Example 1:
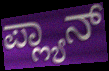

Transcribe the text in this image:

ಪ್ಲ್ಯಾನ್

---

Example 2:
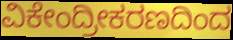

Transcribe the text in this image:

ವಿಕೇಂದ್ರೀಕರಣದಿಂದ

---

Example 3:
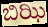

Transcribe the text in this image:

ಬಿಝಿ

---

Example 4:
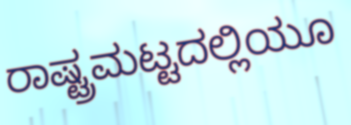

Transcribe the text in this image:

ರಾಷ್ಟ್ರಮಟ್ಟದಲ್ಲಿಯೂ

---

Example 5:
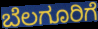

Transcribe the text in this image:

ಬೆಲಗೂರಿಗೆ